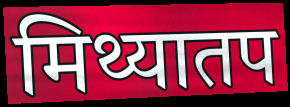
मिथ्यातप